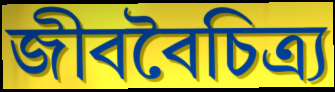
জীববৈচিত্র্য